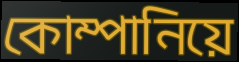
কোম্পানিয়ে